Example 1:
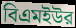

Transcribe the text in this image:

বিএমইউর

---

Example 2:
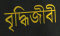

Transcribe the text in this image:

বৃদ্ধিজীবী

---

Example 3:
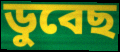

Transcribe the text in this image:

ডুবেছ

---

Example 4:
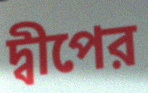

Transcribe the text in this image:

দ্বীপের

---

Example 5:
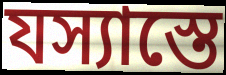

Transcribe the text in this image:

যস্যাস্তে